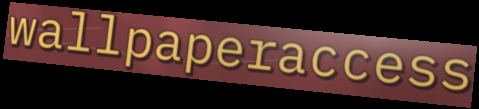
wallpaperaccess